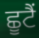
ਛੂਟੈਂ